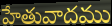
హేతువాదము